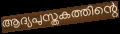
ആദ്യപുസ്തകത്തിന്റെ